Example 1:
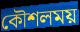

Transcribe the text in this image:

কৌশলময়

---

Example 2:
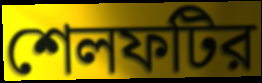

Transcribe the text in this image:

শেলফটির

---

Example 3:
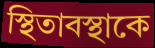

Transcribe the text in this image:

স্থিতাবস্থাকে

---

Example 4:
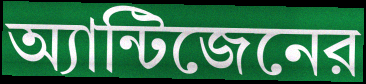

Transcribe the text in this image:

অ্যান্টিজেনের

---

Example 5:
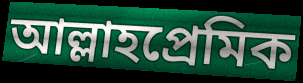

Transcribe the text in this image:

আল্লাহপ্রেমিক